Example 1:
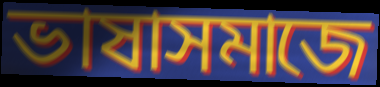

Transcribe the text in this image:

ভাষাসমাজে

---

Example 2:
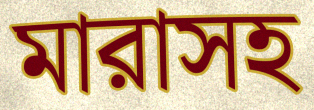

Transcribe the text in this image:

মারাসহ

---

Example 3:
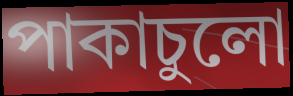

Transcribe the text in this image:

পাকাচুলো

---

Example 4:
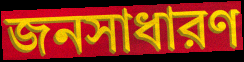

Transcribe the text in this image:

জনসাধারণ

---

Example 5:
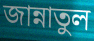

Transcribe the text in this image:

জান্নাতুল